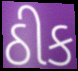
ઠીક